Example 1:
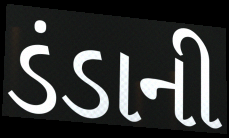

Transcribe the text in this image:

ડંડાની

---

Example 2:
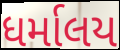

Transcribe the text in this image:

ધર્માલય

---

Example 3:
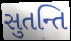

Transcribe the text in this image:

સુતન્તિ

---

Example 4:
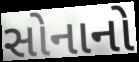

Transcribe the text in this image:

સોનાનો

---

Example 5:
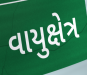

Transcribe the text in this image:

વાયુક્ષેત્ર